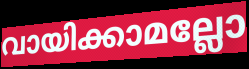
വായിക്കാമല്ലോ